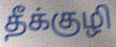
தீக்குழி